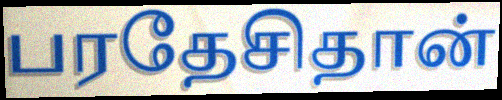
பரதேசிதான்